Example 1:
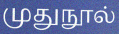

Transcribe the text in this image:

முதுநூல்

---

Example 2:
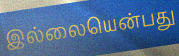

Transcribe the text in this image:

இல்லையென்பது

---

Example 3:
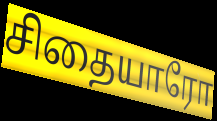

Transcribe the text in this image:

சிதையாரோ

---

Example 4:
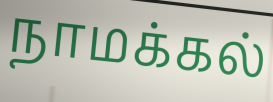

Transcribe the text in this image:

நாமக்கல்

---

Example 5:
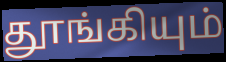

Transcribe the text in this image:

தூங்கியும்